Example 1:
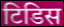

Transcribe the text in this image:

टिडिस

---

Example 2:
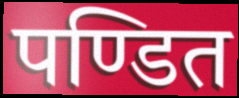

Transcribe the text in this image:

पण्डित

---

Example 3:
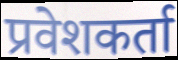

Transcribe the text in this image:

प्रवेशकर्ता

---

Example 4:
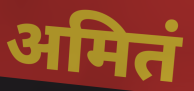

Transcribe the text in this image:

अमितं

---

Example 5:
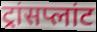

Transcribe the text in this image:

ट्रांसप्लांट